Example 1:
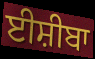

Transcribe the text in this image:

ਈਸ਼ੀਬਾ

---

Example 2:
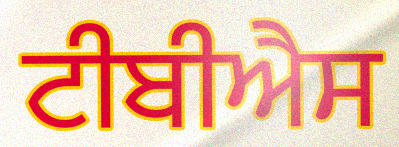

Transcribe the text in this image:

ਟੀਬੀਐਸ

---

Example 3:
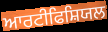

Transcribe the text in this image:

ਆਰਟੀਫਿਸ਼ਿਯਲ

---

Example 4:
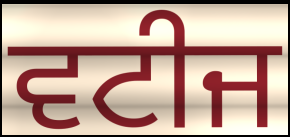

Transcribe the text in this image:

ਵਟੀਜ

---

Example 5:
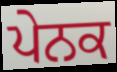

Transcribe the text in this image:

ਪੇਨਕ